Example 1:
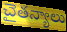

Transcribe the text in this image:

చైతన్యాలు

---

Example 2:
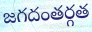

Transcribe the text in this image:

జగదంతర్గత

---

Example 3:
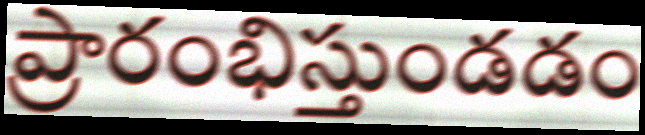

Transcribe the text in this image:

ప్రారంభిస్తుండడం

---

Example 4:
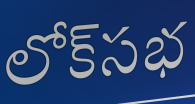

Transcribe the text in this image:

లోక్‌సభ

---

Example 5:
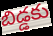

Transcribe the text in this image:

బిడ్డకు